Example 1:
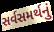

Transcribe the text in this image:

સર્વસમર્થનું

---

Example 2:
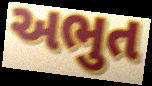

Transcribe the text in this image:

અભુત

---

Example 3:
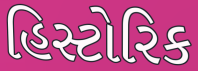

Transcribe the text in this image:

હિસ્ટોરિક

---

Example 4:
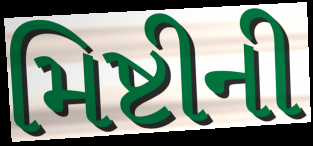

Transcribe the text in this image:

મિષ્ટીની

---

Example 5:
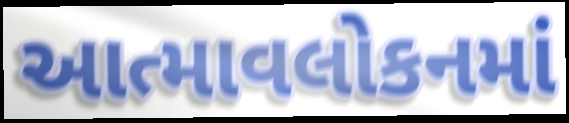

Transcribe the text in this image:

આત્માવલોકનમાં